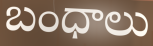
బంధాలు